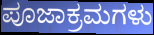
ಪೂಜಾಕ್ರಮಗಳು